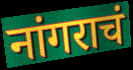
नांगराचं